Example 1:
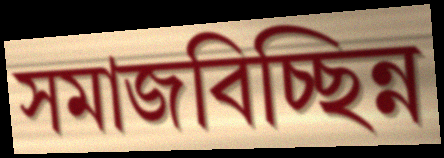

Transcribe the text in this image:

সমাজবিচ্ছিন্ন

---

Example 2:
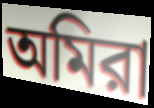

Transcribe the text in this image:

অমিরা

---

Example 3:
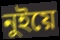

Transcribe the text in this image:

নুইয়ে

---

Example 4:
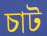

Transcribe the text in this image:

চাট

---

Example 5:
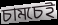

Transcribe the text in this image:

চামচেই